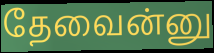
தேவைன்னு